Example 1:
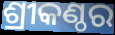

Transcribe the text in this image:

ଶ୍ରୀକଣ୍ଠର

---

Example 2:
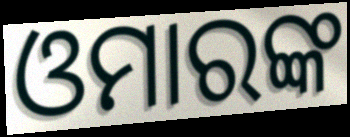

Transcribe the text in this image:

ଓମାରଙ୍କ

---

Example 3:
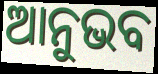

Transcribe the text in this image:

ଆନୁଭବ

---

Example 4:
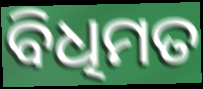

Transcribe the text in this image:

ବିଧିମତ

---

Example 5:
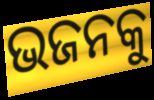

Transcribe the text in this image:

ଭଜନକୁ